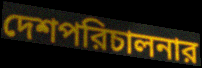
দেশপরিচালনার